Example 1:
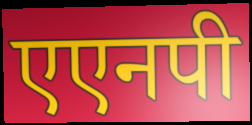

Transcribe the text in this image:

एएनपी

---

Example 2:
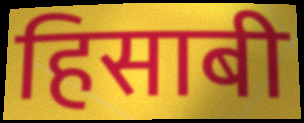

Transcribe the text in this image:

हिसाबी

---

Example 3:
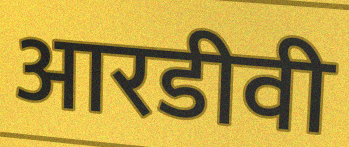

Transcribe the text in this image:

आरडीवी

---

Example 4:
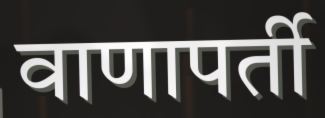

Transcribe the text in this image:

वाणापर्ती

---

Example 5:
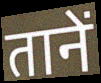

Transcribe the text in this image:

तानें